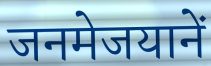
जनमेजयानें